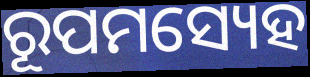
ରୂପମସ୍ୟେହ